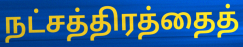
நட்சத்திரத்தைத்